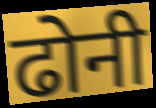
ढोनी